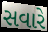
સવારે